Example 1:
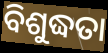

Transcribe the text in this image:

ବିଶୁଦ୍ଧତା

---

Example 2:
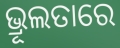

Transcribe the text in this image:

ଭ୍ରୂଲତାରେ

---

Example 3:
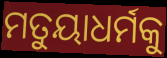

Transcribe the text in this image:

ମତୁୟାଧର୍ମକୁ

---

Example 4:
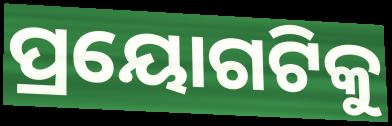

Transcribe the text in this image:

ପ୍ରୟୋଗଟିକୁ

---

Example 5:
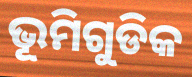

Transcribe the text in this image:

ଭୂମିଗୁଡିକ